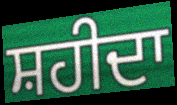
ਸ਼ਹੀਦਾ